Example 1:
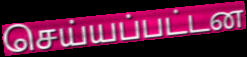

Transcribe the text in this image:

செய்யப்பட்டன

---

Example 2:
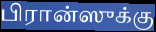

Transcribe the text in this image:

பிரான்ஸுக்கு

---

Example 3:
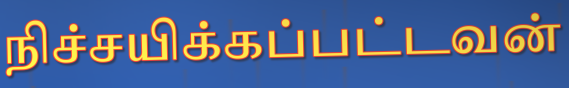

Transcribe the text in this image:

நிச்சயிக்கப்பட்டவன்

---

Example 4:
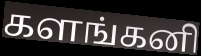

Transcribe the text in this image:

களங்கனி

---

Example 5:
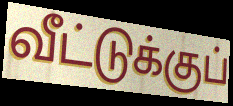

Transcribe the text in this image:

வீட்டுக்குப்